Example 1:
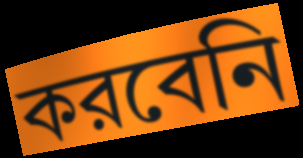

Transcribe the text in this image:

করবেনি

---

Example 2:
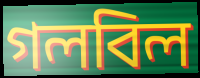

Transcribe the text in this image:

গলবিল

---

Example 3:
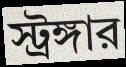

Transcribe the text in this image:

স্ট্রঙ্গার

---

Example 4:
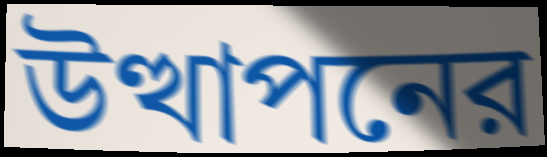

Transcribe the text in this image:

উত্থাপনের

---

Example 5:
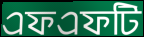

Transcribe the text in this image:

এফএফটি